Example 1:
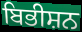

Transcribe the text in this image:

ਬਿਭੀਸ਼ਨ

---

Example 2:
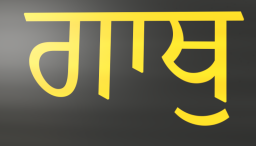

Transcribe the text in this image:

ਗਾਥੁ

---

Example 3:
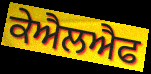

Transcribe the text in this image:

ਕੇਐਲਐਫ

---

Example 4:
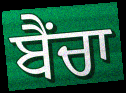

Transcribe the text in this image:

ਬੈਂਚਾ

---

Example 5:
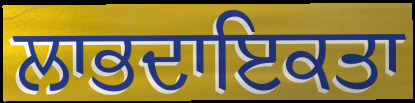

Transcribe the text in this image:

ਲਾਭਦਾਇਕਤਾ